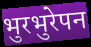
भुरभुरेपन